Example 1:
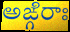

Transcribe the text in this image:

అఙ్గిరాః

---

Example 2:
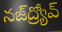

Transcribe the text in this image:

నజ్‌ద్ర్యోవ్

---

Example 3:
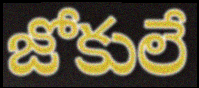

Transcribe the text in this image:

జోకులే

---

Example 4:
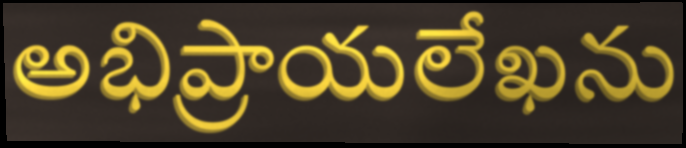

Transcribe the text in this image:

అభిప్రాయలేఖను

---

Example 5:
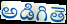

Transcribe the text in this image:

అడిగితె